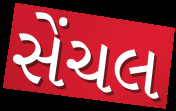
સેંચલ